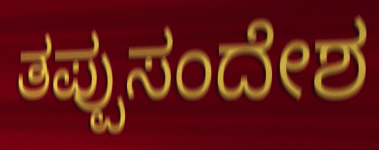
ತಪ್ಪುಸಂದೇಶ